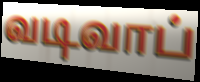
வடிவாப்